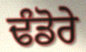
ਢੰਡੋਰੇ